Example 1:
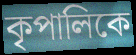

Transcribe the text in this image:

কৃপালিকে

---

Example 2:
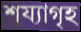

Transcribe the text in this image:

শয্যাগৃহ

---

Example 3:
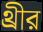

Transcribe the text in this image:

থ্রীর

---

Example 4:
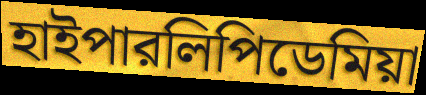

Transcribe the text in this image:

হাইপারলিপিডেমিয়া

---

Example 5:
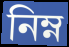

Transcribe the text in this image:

নিম্ন